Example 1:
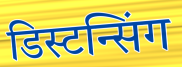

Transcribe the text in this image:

डिस्टन्सिंग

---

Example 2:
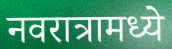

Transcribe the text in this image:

नवरात्रामध्ये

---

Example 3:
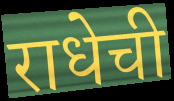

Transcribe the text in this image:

राधेची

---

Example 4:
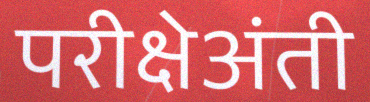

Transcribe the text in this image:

परीक्षेअंती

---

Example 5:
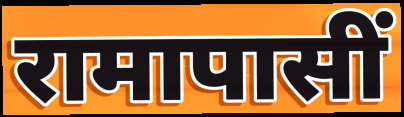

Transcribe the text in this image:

रामापासीं